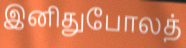
இனிதுபோலத்